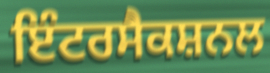
ਇੰਟਰਸੈਕਸ਼ਨਲ